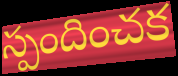
స్పందించక